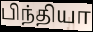
பிந்தியா